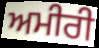
ਅਮੀਰੀ